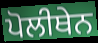
ਪੋਲੀਥੇਨ